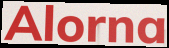
Alorna